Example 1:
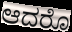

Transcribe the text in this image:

ಆದರೊ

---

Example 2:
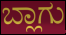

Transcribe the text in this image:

ಬ್ಲಾಗು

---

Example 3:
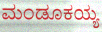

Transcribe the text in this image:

ಮಂಡೂಕಯ್ಯ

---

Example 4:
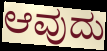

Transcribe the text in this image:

ಆವುದು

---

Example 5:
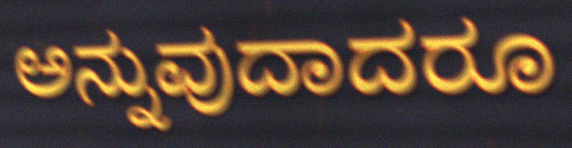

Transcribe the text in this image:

ಅನ್ನುವುದಾದರೂ